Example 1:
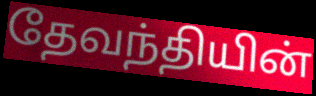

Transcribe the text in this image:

தேவந்தியின்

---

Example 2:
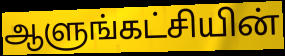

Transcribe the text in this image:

ஆளுங்கட்சியின்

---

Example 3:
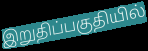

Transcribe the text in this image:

இறுதிப்பகுதியில்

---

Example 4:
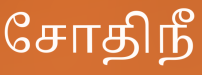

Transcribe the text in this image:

சோதிநீ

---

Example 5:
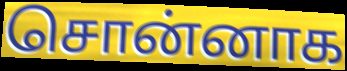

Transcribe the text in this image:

சொன்னாக